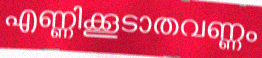
എണ്ണിക്കൂടാതവണ്ണം